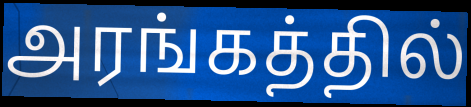
அரங்கத்தில்